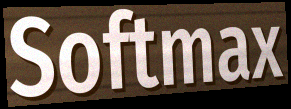
Softmax